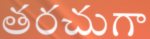
తరచుగా